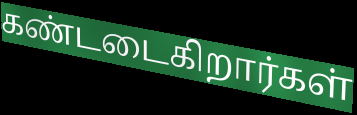
கண்டடைகிறார்கள்